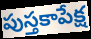
పుస్తకాపేక్ష